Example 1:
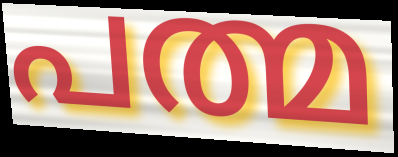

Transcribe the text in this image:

പത്മ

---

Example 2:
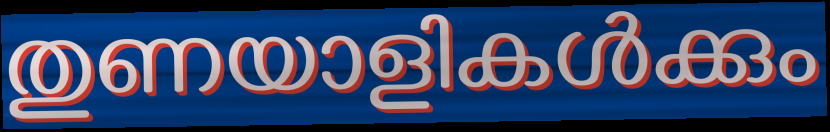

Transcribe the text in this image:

തുണയാളികൾക്കും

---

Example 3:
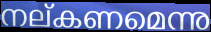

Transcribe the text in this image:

നല്‌കണമെന്നു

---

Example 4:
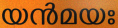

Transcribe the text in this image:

യൻമയഃ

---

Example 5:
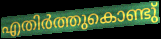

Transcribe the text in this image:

എതിർത്തുകൊണ്ടു്